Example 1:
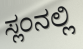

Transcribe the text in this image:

ಸ್ಲಂನಲ್ಲಿ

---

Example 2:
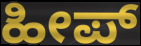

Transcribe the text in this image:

ಹೀಪ್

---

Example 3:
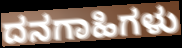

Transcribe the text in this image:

ದನಗಾಹಿಗಳು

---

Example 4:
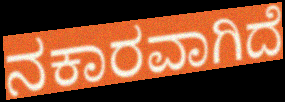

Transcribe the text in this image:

ನಕಾರವಾಗಿದೆ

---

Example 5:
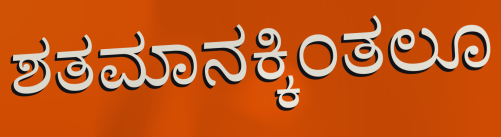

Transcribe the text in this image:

ಶತಮಾನಕ್ಕಿಂತಲೂ